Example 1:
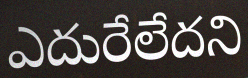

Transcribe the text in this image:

ఎదురేలేదని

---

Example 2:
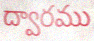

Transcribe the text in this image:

ద్వారము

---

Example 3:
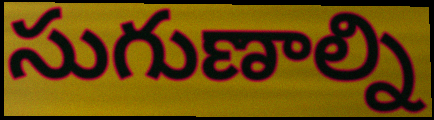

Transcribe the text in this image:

సుగుణాల్ని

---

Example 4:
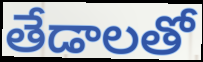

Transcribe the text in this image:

తేడాలతో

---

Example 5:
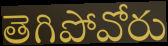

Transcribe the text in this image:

తెగిపోవోరు